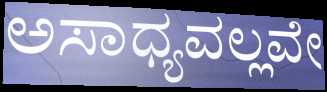
ಅಸಾಧ್ಯವಲ್ಲವೇ